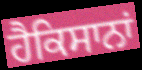
ਹੈਕਿਸਾਨਾਂ